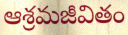
ఆశ్రమజీవితం